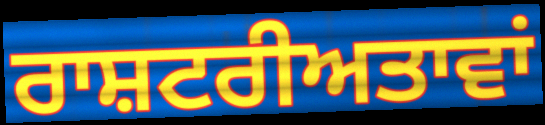
ਰਾਸ਼ਟਰੀਅਤਾਵਾਂ